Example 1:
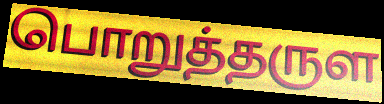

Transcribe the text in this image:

பொறுத்தருள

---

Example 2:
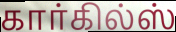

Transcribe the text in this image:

கார்கில்ஸ்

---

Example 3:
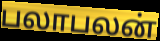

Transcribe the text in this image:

பலாபலன்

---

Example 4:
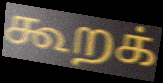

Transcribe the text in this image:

கூறக்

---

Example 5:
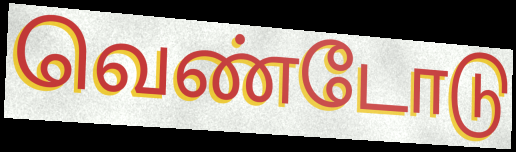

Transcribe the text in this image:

வெண்டோடு